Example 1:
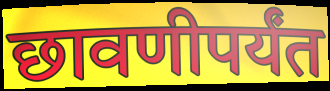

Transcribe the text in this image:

छावणीपर्यंत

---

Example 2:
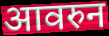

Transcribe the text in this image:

आवरुन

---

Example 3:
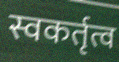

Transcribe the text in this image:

स्वकर्तृत्व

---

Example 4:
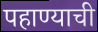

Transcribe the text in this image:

पहाण्याची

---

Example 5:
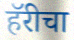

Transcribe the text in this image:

हॅरीचा